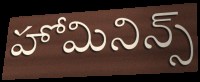
హోమినిన్స్